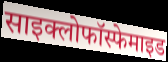
साइक्लोफॉस्फेमाइड